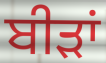
ਬੀੜਾਂ